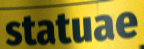
statuae